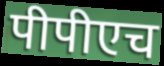
पीपीएच